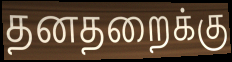
தனதறைக்கு